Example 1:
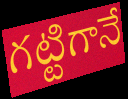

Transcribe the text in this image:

గట్టిగానే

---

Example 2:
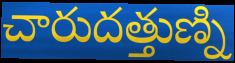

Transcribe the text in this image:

చారుదత్తుణ్ని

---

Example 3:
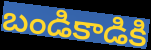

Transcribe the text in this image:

బండికాడికి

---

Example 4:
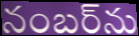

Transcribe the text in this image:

నంబర్‌ను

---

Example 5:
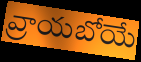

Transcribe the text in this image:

వ్రాయబోయే